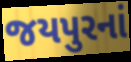
જયપુરનાં